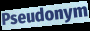
Pseudonym